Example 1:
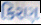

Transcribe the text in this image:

કિરણ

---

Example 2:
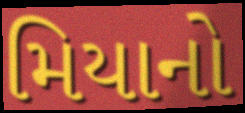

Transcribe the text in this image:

મિયાનો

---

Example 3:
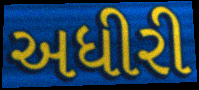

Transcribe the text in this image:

અધીરી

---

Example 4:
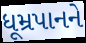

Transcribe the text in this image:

ધૂમ્રપાનને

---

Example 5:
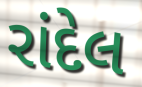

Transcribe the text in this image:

રાંદેલ